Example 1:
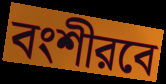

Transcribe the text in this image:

বংশীরবে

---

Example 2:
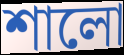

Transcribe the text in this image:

শালো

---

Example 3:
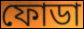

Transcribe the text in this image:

ফোডা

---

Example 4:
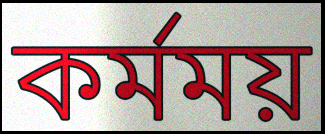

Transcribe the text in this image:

কর্মময়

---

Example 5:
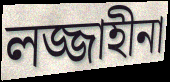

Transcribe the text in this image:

লজ্জাহীনা